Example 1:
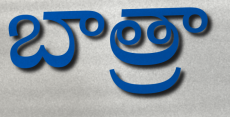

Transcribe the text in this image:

బాత్రా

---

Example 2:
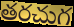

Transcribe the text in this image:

తరచుగ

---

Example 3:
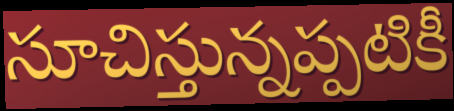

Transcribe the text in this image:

సూచిస్తున్నప్పటికీ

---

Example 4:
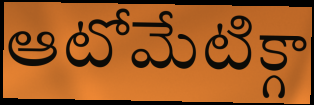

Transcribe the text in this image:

ఆటోమేటిక్గా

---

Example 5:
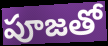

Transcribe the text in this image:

పూజతో